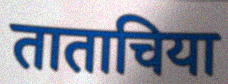
ताताचिया